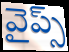
వైప్స్